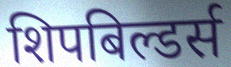
शिपबिल्डर्स